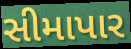
સીમાપાર